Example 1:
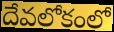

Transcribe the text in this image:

దేవలోకంలో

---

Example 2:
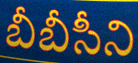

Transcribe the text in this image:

బీబీసీని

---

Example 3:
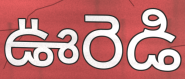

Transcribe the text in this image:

ఊరెడి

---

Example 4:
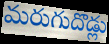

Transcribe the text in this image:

మరుగుదొడ్లు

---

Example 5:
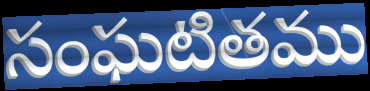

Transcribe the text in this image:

సంఘటితము